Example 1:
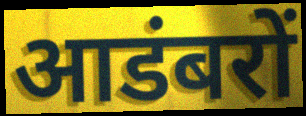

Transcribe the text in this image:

आडंबरों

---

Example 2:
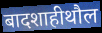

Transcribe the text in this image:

बादशाहीथौल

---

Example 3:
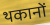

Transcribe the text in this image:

थकानों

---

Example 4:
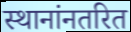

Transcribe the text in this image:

स्थानांनतरित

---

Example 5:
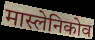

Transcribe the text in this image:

मास्लेनिकोव